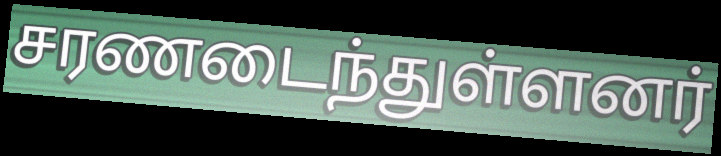
சரணடைந்துள்ளனர்